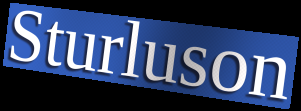
Sturluson